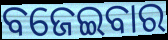
ବଜେଇବାର